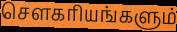
சௌகரியங்களும்